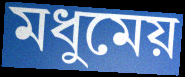
মধুমেয়